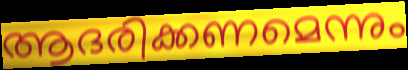
ആദരിക്കണമെന്നും